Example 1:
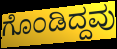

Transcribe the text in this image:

ಗೊಂಡಿದ್ದವು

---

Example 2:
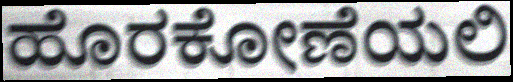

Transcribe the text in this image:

ಹೊರಕೋಣೆಯಲಿ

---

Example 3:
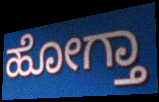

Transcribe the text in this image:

ಹೋಗ್ತಾ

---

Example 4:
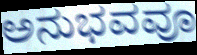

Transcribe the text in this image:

ಅನುಭವವೂ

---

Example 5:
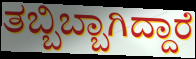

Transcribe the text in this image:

ತಬ್ಬಿಬ್ಬಾಗಿದ್ದಾರೆ